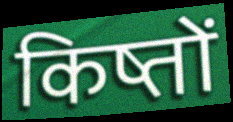
किष्तों